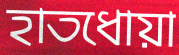
হাতধোয়া